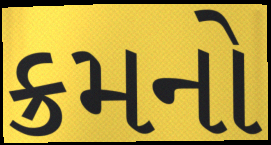
ક્રમનો